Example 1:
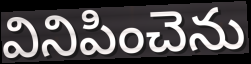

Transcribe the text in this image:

వినిపించెను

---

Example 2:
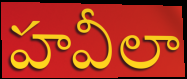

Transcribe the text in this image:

హవీలా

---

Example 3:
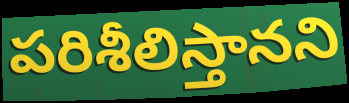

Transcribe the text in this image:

పరిశీలిస్తానని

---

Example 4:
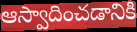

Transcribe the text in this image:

ఆస్వాదించడానికి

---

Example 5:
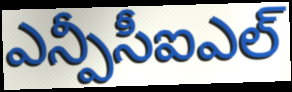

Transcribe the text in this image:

ఎన్పీసీఐఎల్